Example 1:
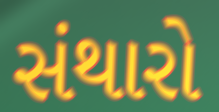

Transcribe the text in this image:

સંથારો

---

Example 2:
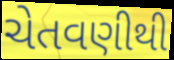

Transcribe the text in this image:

ચેતવણીથી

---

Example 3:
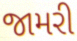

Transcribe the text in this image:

જામરી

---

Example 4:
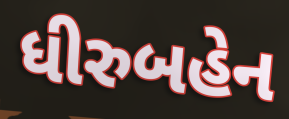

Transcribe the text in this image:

ધીરુબહેન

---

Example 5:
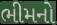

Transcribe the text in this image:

ભીમનો